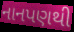
નાનપણથી